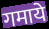
गमाये